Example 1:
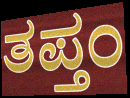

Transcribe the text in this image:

ತಪ್ತಂ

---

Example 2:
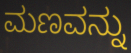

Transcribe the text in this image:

ಮಣವನ್ನು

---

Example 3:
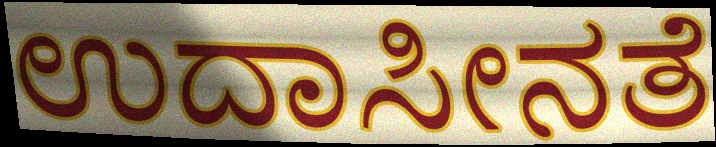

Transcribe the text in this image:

ಉದಾಸೀನತೆ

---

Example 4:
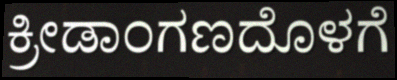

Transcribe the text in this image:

ಕ್ರೀಡಾಂಗಣದೊಳಗೆ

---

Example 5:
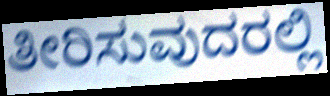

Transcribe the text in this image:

ತೀರಿಸುವುದರಲ್ಲಿ